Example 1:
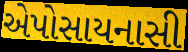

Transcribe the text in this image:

એપોસાયનાસી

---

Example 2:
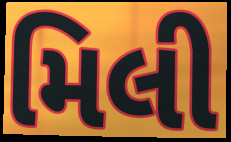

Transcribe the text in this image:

મિલી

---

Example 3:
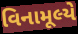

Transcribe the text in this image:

વિનામૂલ્યે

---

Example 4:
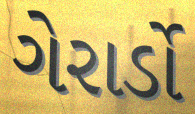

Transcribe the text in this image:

ગેરાર્ડો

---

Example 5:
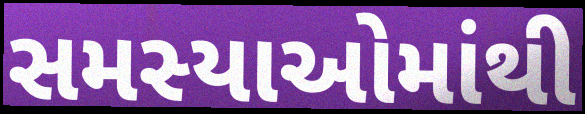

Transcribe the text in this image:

સમસ્યાઓમાંથી